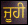
ਜੂਹੀ